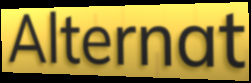
Alternat